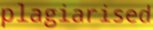
plagiarised